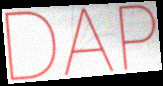
DAP